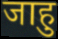
जाहु